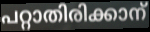
പറ്റാതിരിക്കാന്